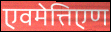
एवमेत्तिएण